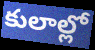
కులాల్లో